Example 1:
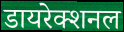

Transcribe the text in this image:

डायरेक्शनल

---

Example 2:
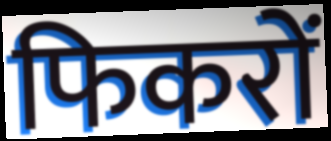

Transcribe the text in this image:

फिकरों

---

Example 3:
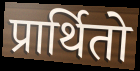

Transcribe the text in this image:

प्रार्थितो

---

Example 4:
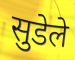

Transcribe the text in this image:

सुडेले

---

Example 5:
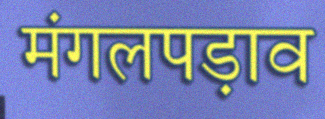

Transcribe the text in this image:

मंगलपड़ाव